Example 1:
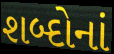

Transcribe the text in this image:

શબ્દોનાં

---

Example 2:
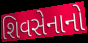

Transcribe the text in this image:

શિવસેનાનો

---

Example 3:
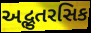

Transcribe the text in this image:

અદ્ભુતરસિક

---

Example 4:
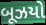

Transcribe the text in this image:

બૂઝયો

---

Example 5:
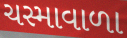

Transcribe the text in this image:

ચસ્માવાળા